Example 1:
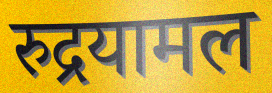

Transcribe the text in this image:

रुद्रयामल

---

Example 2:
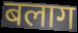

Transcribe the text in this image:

बलाग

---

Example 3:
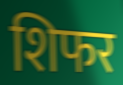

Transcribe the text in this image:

शिफर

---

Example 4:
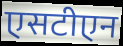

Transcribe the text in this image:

एसटीएन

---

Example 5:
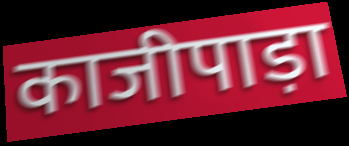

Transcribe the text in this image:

काजीपाड़ा